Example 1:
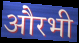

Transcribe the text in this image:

औरभी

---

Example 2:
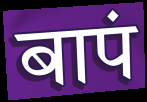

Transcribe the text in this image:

बापं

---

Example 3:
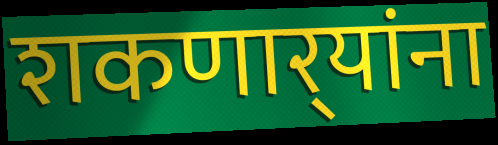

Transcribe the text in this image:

शकणार्‍यांना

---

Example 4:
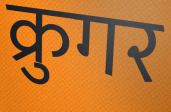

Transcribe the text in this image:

क्रुगर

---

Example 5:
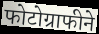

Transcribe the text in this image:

फोटोग्राफीने